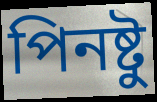
পিনষ্টু